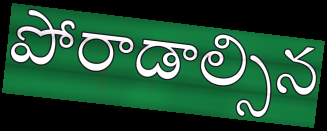
పోరాడాల్సిన